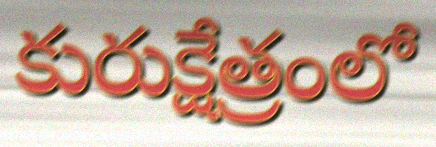
కురుక్షేత్రంలో